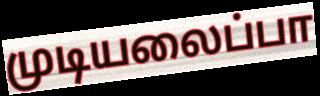
முடியலைப்பா